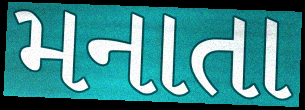
મનાતા